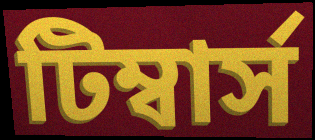
টিম্বার্স